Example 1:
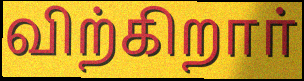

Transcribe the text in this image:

விற்கிறார்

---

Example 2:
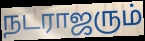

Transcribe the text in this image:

நடராஜரும்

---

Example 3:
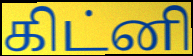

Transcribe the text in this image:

கிட்னி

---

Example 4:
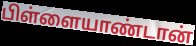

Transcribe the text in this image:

பிள்ளையாண்டான்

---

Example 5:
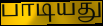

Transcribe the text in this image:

பாடியது